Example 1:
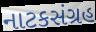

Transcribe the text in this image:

નાટકસંગ્રહ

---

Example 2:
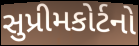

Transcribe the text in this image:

સુપ્રીમકોર્ટનો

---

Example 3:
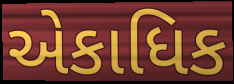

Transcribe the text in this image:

એકાધિક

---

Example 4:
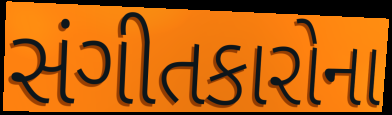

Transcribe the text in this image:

સંગીતકારોના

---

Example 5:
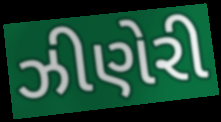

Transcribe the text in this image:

ઝીણેરી